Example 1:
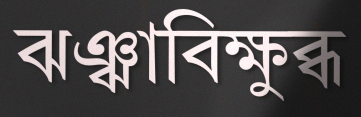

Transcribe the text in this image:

ঝঞ্ঝাবিক্ষুব্ধ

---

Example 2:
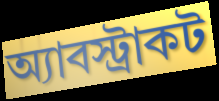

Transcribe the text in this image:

অ্যাবস্ট্রাকট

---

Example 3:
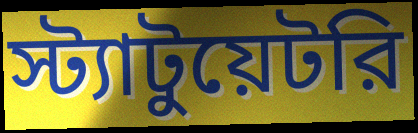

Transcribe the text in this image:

স্ট্যাটুয়েটরি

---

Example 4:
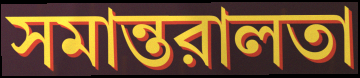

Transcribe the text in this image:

সমান্তরালতা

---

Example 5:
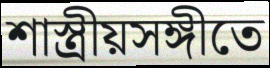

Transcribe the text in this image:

শাস্ত্রীয়সঙ্গীতে